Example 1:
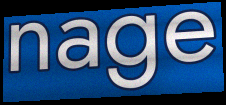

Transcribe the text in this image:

nage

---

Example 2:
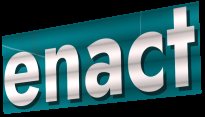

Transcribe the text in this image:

enact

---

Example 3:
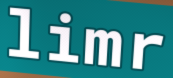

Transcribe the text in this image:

limr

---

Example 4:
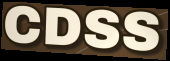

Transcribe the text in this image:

CDSS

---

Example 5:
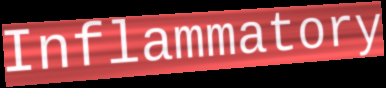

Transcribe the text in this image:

Inflammatory